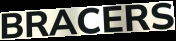
BRACERS